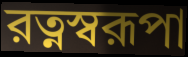
রত্নস্বরূপা